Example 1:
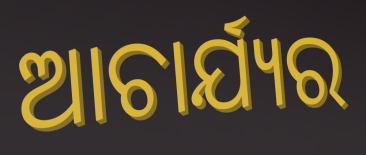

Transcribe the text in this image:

ଆଚାର୍ଯ୍ୟର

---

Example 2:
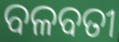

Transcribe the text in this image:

ବଳବତୀ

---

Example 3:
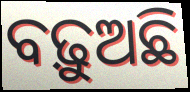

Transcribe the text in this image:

ବଢ଼ୁଅଛି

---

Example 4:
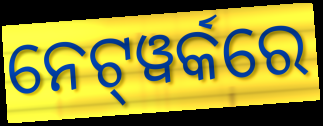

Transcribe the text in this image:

ନେଟ୍‍ୱର୍କରେ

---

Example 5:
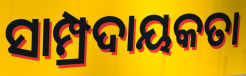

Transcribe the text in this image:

ସାମ୍ପ୍ରଦାୟକତା